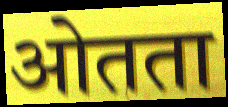
ओतता